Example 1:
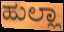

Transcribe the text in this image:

ಹುಲ್ಲಾ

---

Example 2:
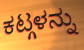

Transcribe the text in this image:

ಕಟ್ಗಳನ್ನು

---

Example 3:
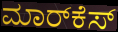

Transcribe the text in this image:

ಮಾರ್‌ಕೆಸ್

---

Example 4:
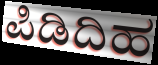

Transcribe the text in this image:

ಪಿಡಿದಿಹ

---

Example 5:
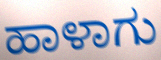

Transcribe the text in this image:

ಹಾಳಾಗು